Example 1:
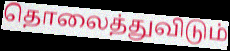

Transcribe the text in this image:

தொலைத்துவிடும்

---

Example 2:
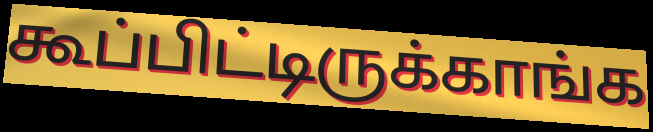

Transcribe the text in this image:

கூப்பிட்டிருக்காங்க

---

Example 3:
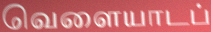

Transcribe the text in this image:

வெளையாடப்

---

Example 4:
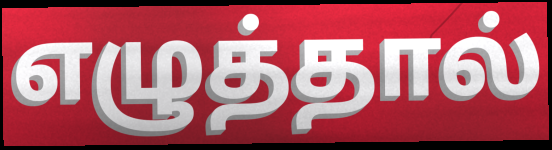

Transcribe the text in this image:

எழுத்தால்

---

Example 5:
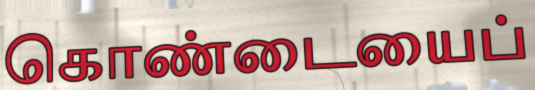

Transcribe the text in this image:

கொண்டையைப்